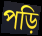
পড়ি